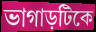
ভাগাড়টিকে